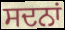
ਸਦਨਾਂ